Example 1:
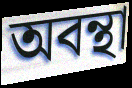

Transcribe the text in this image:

অবন্থা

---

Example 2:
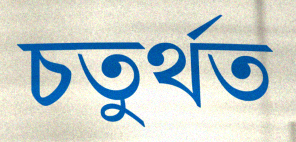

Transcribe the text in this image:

চতুর্থত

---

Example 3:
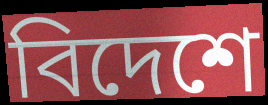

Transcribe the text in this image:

বিদেশে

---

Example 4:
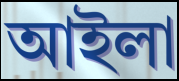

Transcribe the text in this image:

আইলা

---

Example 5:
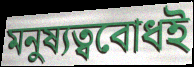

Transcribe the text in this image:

মনুষ্যত্ববোধই